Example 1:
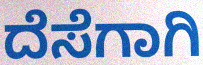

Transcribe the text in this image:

ದೆಸೆಗಾಗಿ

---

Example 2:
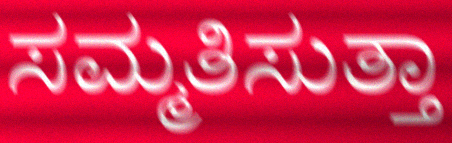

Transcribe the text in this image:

ಸಮ್ಮತಿಸುತ್ತಾ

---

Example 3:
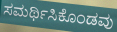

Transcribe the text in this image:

ಸಮರ್ಥಿಸಿಕೊಂಡವು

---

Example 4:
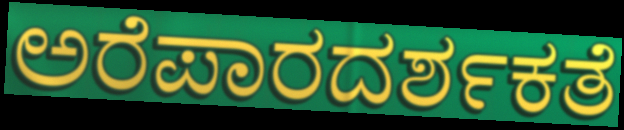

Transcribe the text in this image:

ಅರೆಪಾರದರ್ಶಕತೆ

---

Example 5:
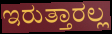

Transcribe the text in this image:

ಇರುತ್ತಾರಲ್ಲ